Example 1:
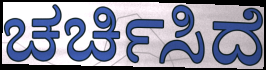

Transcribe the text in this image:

ಚರ್ಚಿಸಿದೆ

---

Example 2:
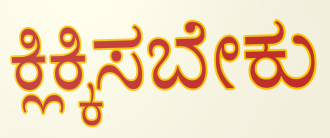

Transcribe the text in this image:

ಕ್ಲಿಕ್ಕಿಸಬೇಕು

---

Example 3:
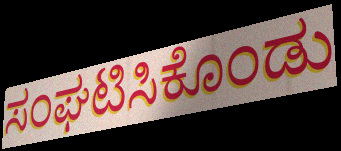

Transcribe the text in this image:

ಸಂಘಟಿಸಿಕೊಂಡು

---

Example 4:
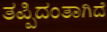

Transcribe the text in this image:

ತಪ್ಪಿದಂತಾಗಿದೆ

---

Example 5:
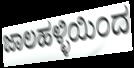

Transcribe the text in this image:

ಜಾಲಹಳ್ಳಿಯಿಂದ